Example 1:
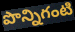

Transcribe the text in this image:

పొన్నిగంటి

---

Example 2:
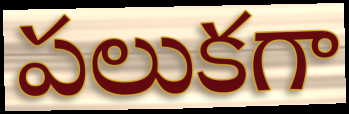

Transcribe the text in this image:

పలుకగా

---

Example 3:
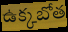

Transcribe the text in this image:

ఉక్కబోత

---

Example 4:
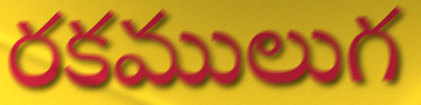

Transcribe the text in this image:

రకములుగ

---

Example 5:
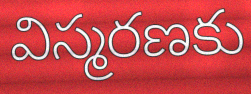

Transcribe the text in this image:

విస్మరణకు